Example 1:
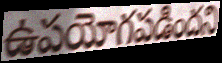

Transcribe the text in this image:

ఉపయోగపడిందని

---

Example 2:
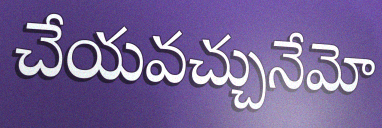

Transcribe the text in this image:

చేయవచ్చునేమో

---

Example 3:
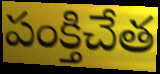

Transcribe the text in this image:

పంక్తిచేత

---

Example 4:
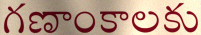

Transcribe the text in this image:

గణాంకాలకు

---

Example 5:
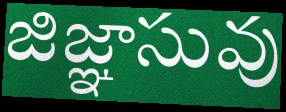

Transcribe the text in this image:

జిజ్ఞాసువు